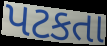
પટકતા